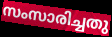
സംസാരിച്ചതു